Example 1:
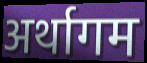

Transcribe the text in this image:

अर्थागम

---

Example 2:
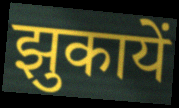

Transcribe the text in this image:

झुकायें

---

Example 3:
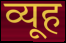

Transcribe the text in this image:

व्यूह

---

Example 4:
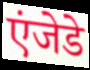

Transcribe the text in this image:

एंजेडे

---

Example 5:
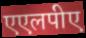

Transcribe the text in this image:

एएलपीए